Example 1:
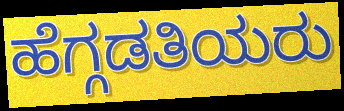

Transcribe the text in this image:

ಹೆಗ್ಗಡತಿಯರು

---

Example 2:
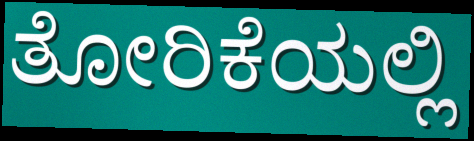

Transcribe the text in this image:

ತೋರಿಕೆಯಲ್ಲಿ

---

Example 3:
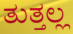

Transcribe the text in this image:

ತುತ್ತಲ್ಲ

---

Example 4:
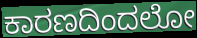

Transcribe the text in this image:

ಕಾರಣದಿಂದಲೋ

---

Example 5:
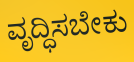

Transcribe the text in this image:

ವೃದ್ಧಿಸಬೇಕು